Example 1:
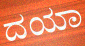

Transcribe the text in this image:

ದಯಾ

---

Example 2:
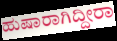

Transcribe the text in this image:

ಹುಷಾರಾಗಿದ್ದೀರಾ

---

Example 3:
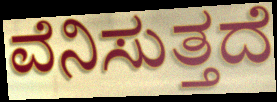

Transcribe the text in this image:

ವೆನಿಸುತ್ತದೆ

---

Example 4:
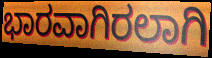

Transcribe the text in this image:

ಭಾರವಾಗಿರಲಾಗಿ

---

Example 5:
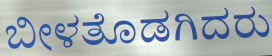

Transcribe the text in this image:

ಬೀಳತೊಡಗಿದರು